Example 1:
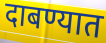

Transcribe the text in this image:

दाबण्यात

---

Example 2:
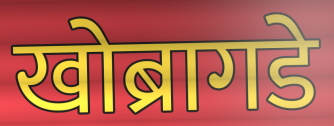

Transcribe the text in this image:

खोब्रागडे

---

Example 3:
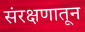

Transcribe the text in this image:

संरक्षणातून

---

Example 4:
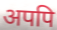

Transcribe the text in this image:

अपपि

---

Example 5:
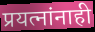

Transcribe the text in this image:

प्रयत्नांनाही